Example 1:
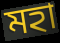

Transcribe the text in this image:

মহা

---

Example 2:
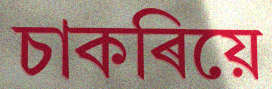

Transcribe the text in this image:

চাকৰিয়ে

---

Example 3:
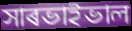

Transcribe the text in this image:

সাৰভাইভাল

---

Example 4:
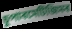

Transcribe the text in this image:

চুপাৰমেটিজিমৰ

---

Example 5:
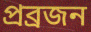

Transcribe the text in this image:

প্ৰব্ৰজন